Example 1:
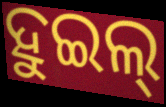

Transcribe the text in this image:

ହୁଇଲ୍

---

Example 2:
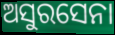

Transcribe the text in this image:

ଅସୁରସେନା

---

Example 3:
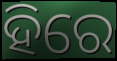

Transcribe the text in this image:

ହିରେ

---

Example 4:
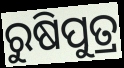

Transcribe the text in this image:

ରୁଷିପୁତ୍ର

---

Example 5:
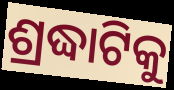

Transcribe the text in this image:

ଶ୍ରଦ୍ଧାଟିକୁ